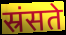
स्रंसते